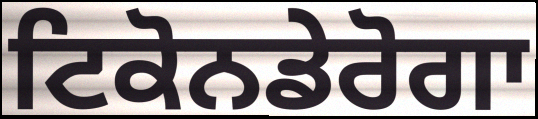
ਟਿਕੋਨਡੇਰੋਗਾ